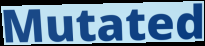
Mutated